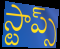
స్టాప్స్